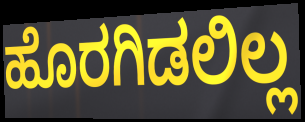
ಹೊರಗಿಡಲಿಲ್ಲ